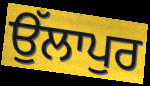
ਉੱਲਾਪੁਰ